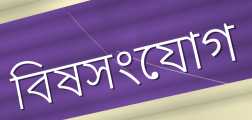
বিষসংযোগ